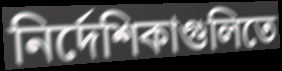
নির্দেশিকাগুলিতে